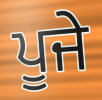
ਪੂਜੇ